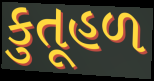
કુતૂહળ